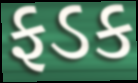
ફડક